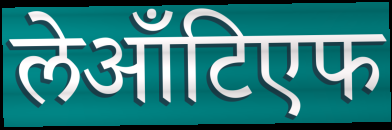
लेआँटिएफ